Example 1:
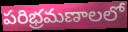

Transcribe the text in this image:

పరిభ్రమణాలలో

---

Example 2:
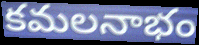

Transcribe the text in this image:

కమలనాభం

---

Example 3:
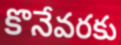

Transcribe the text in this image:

కొనేవరకు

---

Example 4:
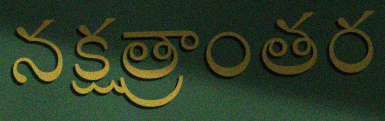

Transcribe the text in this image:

నక్షత్రాంతర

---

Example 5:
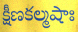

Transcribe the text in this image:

క్షీణకల్మషాః